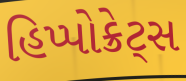
હિપ્પોક્રેટ્સ